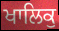
ਖਾਲਿਕੁ